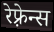
रेफ़्रेन्स